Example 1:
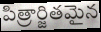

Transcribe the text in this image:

పిత్రార్జితమైన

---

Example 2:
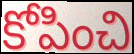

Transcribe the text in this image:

కోపించి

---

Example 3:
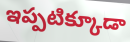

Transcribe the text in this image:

ఇప్పటిక్కూడా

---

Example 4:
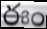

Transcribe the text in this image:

ఈం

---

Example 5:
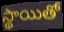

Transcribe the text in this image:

స్థాయితో